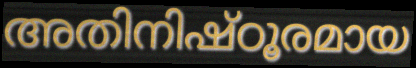
അതിനിഷ്ഠൂരമായ